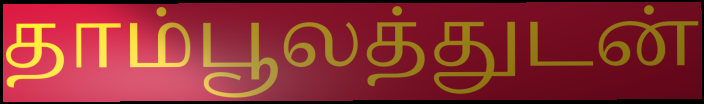
தாம்பூலத்துடன்